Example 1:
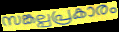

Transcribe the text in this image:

സങ്കല്പപ്രകാരം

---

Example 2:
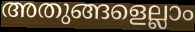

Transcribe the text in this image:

അതുങ്ങളെല്ലാം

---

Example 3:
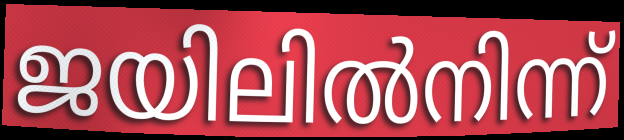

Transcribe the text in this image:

ജയിലിൽനിന്ന്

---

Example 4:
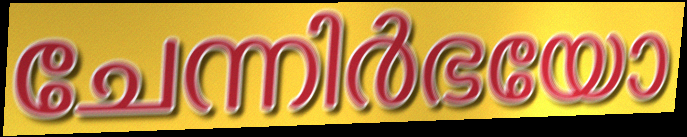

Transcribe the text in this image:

ചേന്നിർഭയോ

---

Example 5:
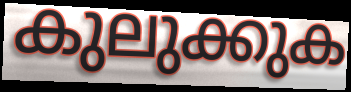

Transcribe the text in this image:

കുലുക്കുക